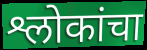
श्लोकांचा